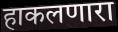
हाकलणारा